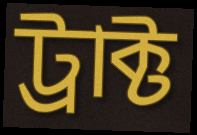
ট্রাক্ট